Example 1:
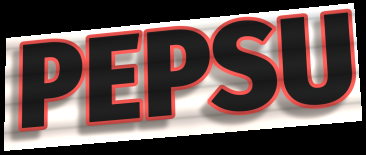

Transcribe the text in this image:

PEPSU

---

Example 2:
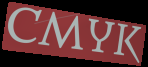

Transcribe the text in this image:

CMYK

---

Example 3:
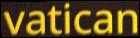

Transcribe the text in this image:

vatican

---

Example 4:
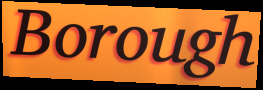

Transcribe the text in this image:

Borough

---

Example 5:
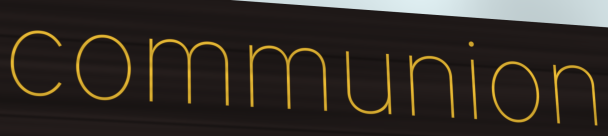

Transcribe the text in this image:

communion